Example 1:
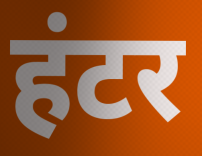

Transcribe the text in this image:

हंटर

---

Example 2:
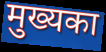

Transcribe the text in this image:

मुख्यका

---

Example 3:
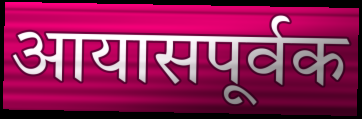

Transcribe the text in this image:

आयासपूर्वक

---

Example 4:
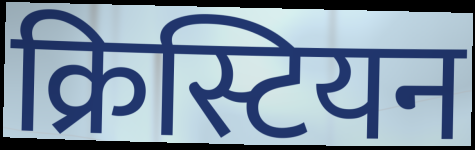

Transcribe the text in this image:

क्रिस्टियन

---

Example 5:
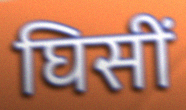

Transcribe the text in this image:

घिसीं